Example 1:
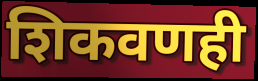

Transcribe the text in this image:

शिकवणही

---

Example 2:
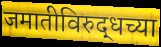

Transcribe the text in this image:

जमातीविरुद्धच्या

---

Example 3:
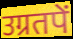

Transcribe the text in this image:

उग्रतपें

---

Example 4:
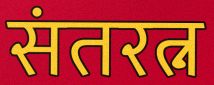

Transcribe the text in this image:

संतरत्न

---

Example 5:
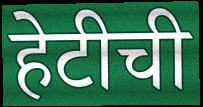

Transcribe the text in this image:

हेटीची